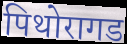
पिथोरागड